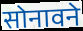
सोनावने